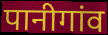
पानीगांव